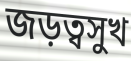
জড়ত্বসুখ